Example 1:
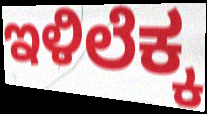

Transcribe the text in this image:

ಇಳಿಲೆಕ್ಕ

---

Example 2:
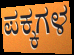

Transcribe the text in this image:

ಪಕ್ಕಗಳ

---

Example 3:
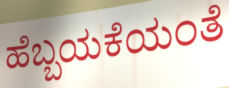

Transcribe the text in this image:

ಹೆಬ್ಬಯಕೆಯಂತೆ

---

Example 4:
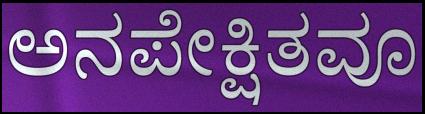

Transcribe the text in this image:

ಅನಪೇಕ್ಷಿತವೂ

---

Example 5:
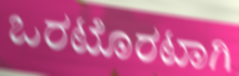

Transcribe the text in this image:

ಒರಟೊರಟಾಗಿ